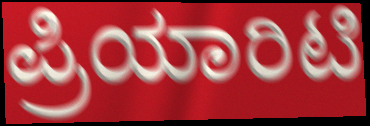
ಪ್ರಿಯಾರಿಟಿ